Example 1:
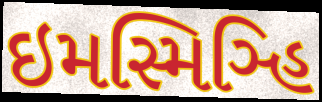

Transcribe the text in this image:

ઇમસ્મિઞ્હિ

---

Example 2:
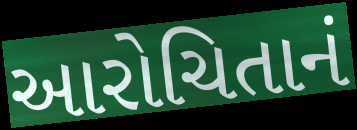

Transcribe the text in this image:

આરોચિતાનં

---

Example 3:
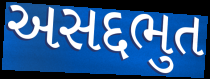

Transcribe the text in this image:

અસદ્દભુત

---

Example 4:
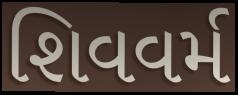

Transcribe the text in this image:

શિવવર્મ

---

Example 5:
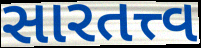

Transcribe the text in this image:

સારતત્ત્વ